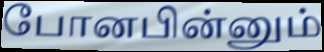
போனபின்னும்